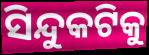
ସିନ୍ଦୁକଟିକୁ